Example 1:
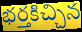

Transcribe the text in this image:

భర్తకిచ్చిన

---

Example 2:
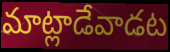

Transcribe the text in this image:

మాట్లాడేవాడట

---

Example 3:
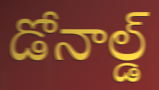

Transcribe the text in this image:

డోనాల్డ్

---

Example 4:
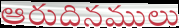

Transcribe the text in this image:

ఆరుదినములు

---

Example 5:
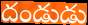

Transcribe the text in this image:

దండుడు